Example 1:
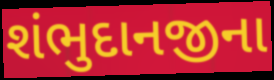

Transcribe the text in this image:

શંભુદાનજીના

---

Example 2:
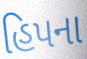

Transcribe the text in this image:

હિપના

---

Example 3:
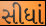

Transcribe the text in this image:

સીધાં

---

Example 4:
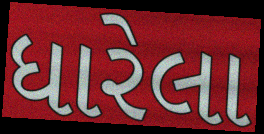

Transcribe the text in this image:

ધારેલા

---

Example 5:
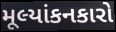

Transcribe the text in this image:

મૂલ્યાંકનકારો